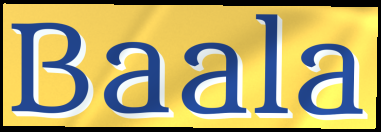
Baala